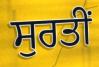
ਸੁਰਤੀਂ